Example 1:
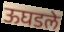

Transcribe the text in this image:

ऊघडले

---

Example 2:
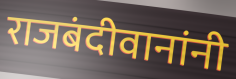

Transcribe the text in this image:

राजबंदीवानांनी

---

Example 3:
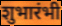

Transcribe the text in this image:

शुभारंभी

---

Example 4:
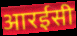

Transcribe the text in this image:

आरईसी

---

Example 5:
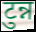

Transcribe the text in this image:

टुन्न